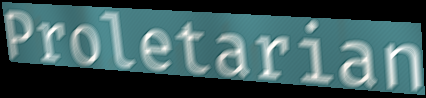
Proletarian